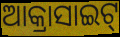
ଆକ୍ରାସାଇଟ୍